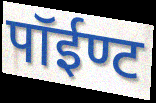
पॉईण्ट